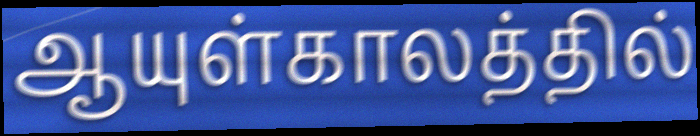
ஆயுள்காலத்தில்